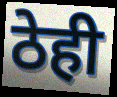
ठेही